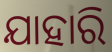
ଯାହାରି